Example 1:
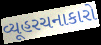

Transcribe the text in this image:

વ્યૂહરચનાકારો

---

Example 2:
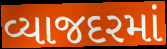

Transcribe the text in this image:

વ્યાજદરમાં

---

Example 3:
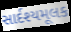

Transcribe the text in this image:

સાર્દશ્યમૂલક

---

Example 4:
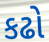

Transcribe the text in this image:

કઢો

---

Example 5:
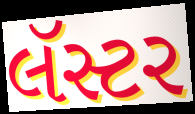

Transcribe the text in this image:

લૅસ્ટર